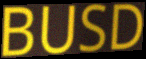
BUSD